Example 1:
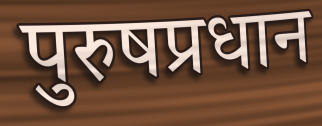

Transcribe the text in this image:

पुरुषप्रधान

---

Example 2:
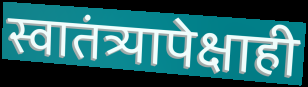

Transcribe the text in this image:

स्वातंत्र्यापेक्षाही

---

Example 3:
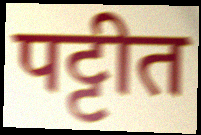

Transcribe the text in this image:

पट्टीत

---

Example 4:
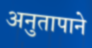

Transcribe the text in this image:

अनुतापाने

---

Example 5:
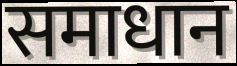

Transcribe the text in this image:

समाधान